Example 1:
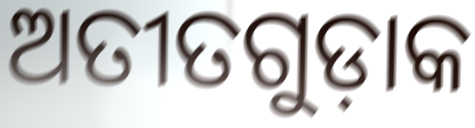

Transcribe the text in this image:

ଅତୀତଗୁଡ଼ାକ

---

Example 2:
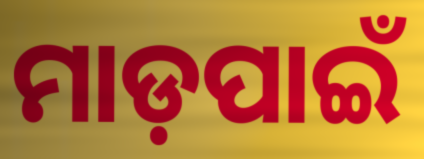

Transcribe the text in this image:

ମାଡ଼ପାଇଁ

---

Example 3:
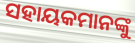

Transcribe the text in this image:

ସହାୟକମାନଙ୍କୁ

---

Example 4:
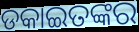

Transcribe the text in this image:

ଡକାଇତଙ୍କର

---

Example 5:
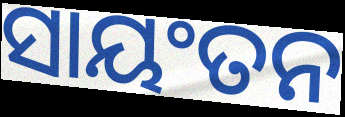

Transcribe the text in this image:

ସାୟଂତନ